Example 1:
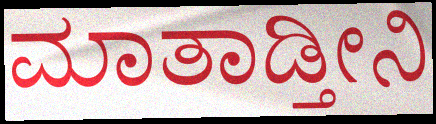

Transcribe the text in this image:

ಮಾತಾಡ್ತೀನಿ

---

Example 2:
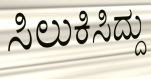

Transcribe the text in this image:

ಸಿಲುಕಿಸಿದ್ದು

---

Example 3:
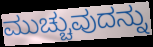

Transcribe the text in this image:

ಮುಚ್ಚುವುದನ್ನು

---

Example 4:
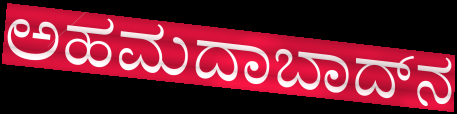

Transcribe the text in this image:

ಅಹಮದಾಬಾದ್‌ನ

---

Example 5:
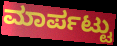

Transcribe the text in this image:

ಮಾರ್ಪಟ್ಟು